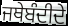
ਜਥੇਬੰਦੀਦੇ